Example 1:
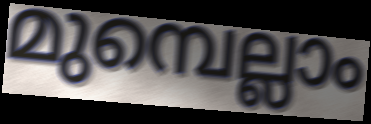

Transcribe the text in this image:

മുമ്പെല്ലാം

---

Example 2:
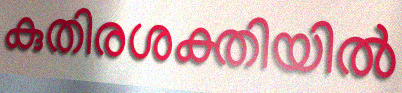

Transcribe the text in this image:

കുതിരശക്തിയിൽ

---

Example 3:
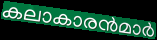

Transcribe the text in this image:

കലാകാരൻമാർ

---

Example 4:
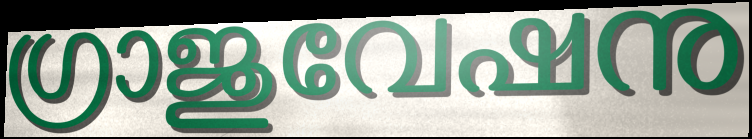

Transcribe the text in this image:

ഗ്രാജുവേഷനു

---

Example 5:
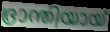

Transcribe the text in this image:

ഭ്രാന്തിയായ്